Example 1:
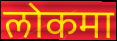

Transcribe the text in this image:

लोकमा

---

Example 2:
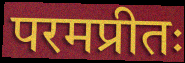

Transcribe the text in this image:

परमप्रीतः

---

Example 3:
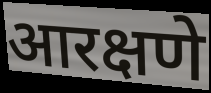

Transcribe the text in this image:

आरक्षणे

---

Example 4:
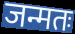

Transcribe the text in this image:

जन्मतः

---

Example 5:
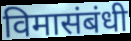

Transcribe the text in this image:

विमासंबंधी